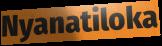
Nyanatiloka